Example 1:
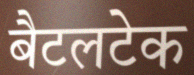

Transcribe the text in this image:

बैटलटेक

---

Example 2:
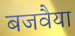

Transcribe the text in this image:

बजवैया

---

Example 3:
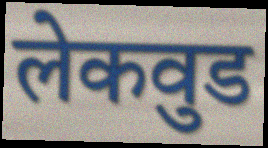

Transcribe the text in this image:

लेकवुड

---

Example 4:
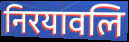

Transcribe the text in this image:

निरयावलि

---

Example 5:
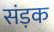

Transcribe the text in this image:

संड़क